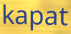
kapat